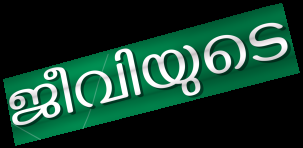
ജീവിയുടെ